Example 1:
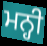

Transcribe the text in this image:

ਮਨ੍ਹੀ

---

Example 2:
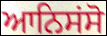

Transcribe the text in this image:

ਆਨਿਸਂਸੋ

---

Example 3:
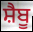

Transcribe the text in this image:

ਸ਼ੈਬੂ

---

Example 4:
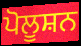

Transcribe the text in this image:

ਪੋਲੂਸ਼ਨ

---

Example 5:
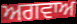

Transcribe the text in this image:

ਅਗਵਾਅ